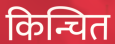
किन्चित